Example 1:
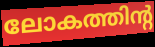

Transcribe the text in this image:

ലോകത്തിന്റ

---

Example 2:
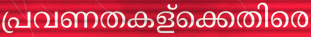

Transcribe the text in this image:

പ്രവണതകള്ക്കെതിരെ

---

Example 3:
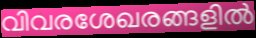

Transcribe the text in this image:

വിവരശേഖരങ്ങളിൽ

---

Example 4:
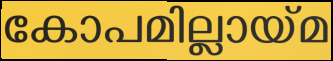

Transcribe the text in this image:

കോപമില്ലായ്മ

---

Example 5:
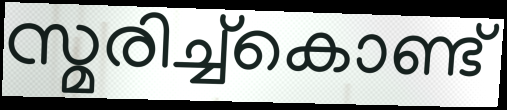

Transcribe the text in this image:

സ്മരിച്ച്കൊണ്ട്